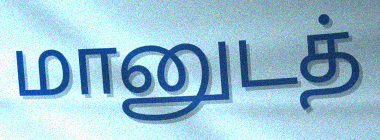
மானுடத்